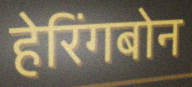
हेरिंगबोन